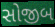
સોજીબ